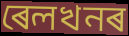
ৰেলখনৰ